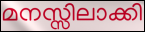
മനസ്സിലാക്കി